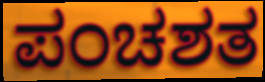
ಪಂಚಶತ